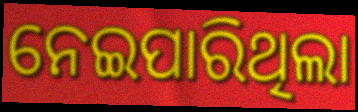
ନେଇପାରିଥିଲା